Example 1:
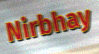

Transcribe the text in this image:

Nirbhay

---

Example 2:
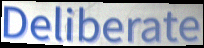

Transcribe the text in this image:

Deliberate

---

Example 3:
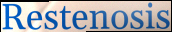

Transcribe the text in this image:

Restenosis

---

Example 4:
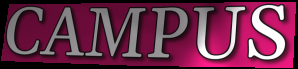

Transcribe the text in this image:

CAMPUS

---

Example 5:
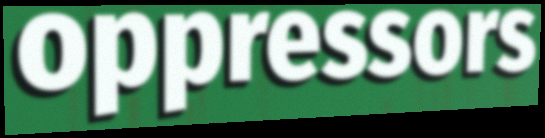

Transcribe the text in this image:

oppressors